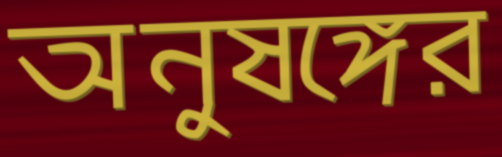
অনুষঙ্গের